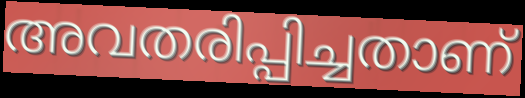
അവതരിപ്പിച്ചതാണ്